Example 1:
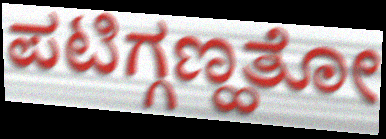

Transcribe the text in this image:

ಪಟಿಗ್ಗಣ್ಹತೋ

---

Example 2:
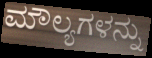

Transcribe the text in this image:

ಮೌಲ್ಯಗಳನ್ನು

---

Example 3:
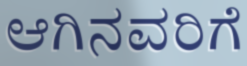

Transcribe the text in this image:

ಆಗಿನವರಿಗೆ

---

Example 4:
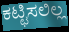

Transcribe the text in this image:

ಕಟ್ಟಿಸಲಿಲ್ಲ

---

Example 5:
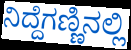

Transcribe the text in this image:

ನಿದ್ದೆಗಣ್ಣಿನಲ್ಲಿ